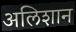
अलिशान